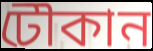
টৌকান